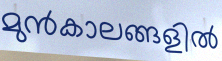
മുൻകാലങ്ങളിൽ